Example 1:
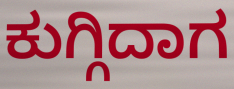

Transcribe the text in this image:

ಕುಗ್ಗಿದಾಗ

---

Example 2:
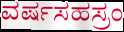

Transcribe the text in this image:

ವರ್ಷಸಹಸ್ರಂ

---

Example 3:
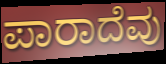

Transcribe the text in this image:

ಪಾರಾದೆವು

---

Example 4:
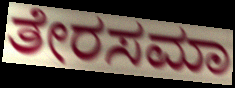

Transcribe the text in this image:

ತೇರಸಮಾ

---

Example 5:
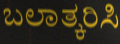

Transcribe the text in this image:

ಬಲಾತ್ಕರಿಸಿ